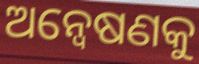
ଅନ୍ବେଷଣକୁ